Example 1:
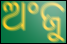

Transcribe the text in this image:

ଅଂଜୁ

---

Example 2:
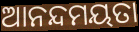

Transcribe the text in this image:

ଆନନ୍ଦମୟତା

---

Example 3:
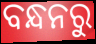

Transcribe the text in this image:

ବନ୍ଧନରୁ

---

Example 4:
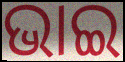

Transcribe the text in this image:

ଭାଇ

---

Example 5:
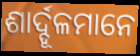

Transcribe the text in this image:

ଶାର୍ଦ୍ଦୂଳମାନେ